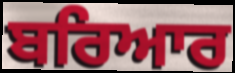
ਬਰਿਆਰ